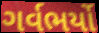
ગર્વભર્યો